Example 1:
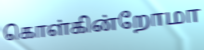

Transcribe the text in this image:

கொள்கின்றோமா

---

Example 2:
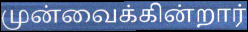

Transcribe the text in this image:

முன்வைக்கின்றார்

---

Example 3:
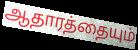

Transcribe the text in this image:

ஆதாரத்தையும்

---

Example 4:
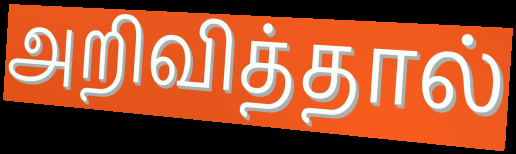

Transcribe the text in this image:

அறிவித்தால்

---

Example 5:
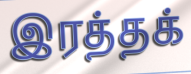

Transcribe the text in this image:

இரத்தக்